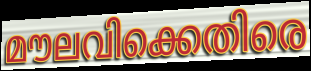
മൗലവിക്കെതിരെ